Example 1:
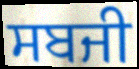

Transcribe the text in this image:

ਸਬਜੀ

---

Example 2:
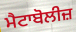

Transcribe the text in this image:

ਮੈਟਾਬੋਲੀਜ਼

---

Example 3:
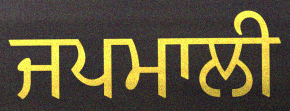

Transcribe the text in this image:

ਜਪਮਾਲੀ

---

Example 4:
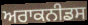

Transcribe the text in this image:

ਅਰਾਕਨੀਡਸ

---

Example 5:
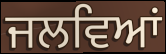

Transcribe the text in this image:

ਜਲਵਿਆਂ